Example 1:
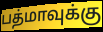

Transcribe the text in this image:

பத்மாவுக்கு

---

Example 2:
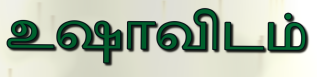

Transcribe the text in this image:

உஷாவிடம்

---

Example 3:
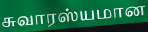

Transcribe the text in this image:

சுவாரஸ்யமான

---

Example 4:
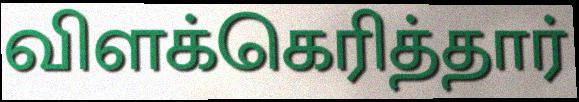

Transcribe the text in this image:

விளக்கெரித்தார்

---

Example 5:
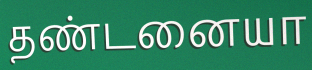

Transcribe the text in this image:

தண்டனையா